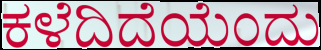
ಕಳೆದಿದೆಯೆಂದು